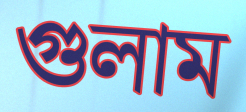
গুলাম